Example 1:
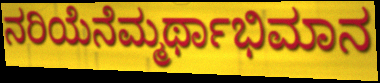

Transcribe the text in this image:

ನರಿಯೆನೆಮ್ಮರ್ಥಾಭಿಮಾನ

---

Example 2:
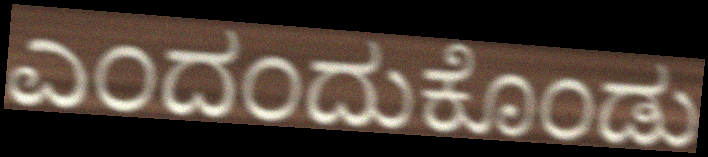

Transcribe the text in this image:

ಎಂದಂದುಕೊಂಡು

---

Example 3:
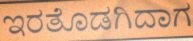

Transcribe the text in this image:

ಇರತೊಡಗಿದಾಗ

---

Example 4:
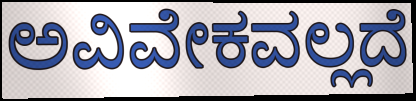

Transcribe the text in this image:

ಅವಿವೇಕವಲ್ಲದೆ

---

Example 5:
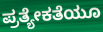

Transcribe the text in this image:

ಪ್ರತ್ಯೇಕತೆಯೂ